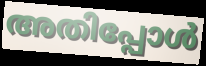
അതിപ്പോൾ